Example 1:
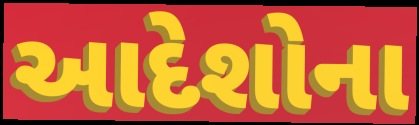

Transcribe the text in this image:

આદેશોના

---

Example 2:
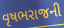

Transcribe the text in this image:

વૃષભરાજની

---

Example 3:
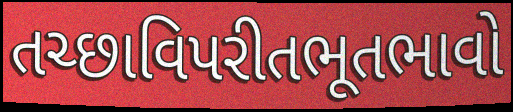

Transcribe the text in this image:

તચ્છાવિપરીતભૂતભાવો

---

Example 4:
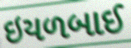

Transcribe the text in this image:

ઇયળબાઈ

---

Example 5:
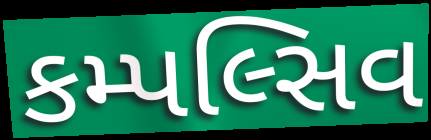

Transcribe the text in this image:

કમ્પલ્સિવ